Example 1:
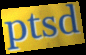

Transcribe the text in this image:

ptsd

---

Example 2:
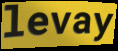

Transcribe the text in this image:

levay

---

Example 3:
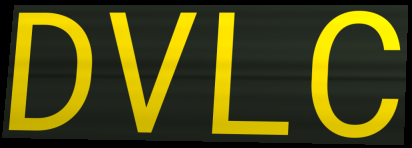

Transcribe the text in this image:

DVLC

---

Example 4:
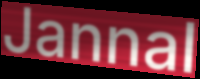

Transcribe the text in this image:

Jannal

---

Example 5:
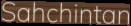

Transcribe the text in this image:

Sahchintan